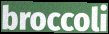
broccoli